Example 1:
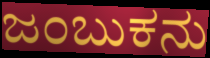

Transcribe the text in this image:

ಜಂಬುಕನು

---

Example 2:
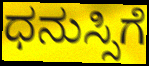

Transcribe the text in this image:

ಧನುಸ್ಸಿಗೆ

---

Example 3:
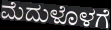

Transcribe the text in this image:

ಮೆದುಳೊಳಗೆ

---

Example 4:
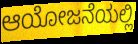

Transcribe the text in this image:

ಆಯೋಜನೆಯಲ್ಲಿ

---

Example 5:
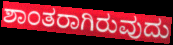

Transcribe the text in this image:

ಶಾಂತರಾಗಿರುವುದು